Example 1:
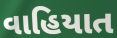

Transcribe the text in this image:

વાહિયાત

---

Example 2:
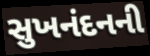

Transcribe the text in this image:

સુખનંદનની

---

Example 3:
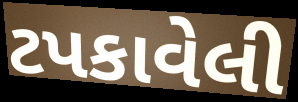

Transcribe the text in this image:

ટપકાવેલી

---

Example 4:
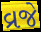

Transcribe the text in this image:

વ્રજે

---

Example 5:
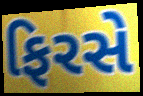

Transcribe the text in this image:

ફિરસે